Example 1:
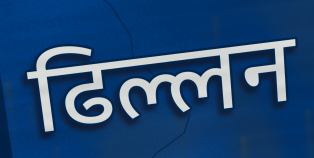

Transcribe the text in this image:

ढिल्लन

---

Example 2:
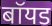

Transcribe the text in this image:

बॉयड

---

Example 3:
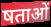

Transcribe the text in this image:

षताओं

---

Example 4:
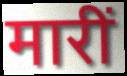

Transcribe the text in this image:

मारीं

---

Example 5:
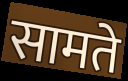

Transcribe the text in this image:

सामते